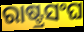
ରାଷ୍ଟ୍ରସଂଘ